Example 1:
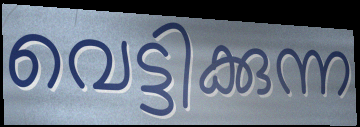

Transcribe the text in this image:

വെട്ടിക്കുന്ന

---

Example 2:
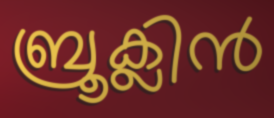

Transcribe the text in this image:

ബ്രൂക്ലിൻ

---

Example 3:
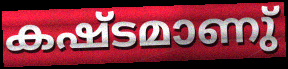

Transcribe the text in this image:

കഷ്ടമാണു്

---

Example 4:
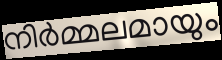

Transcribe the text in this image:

നിർമ്മലമായും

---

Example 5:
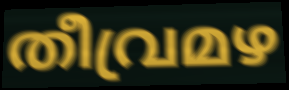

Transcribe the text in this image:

തീവ്രമഴ